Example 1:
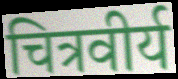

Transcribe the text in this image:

चित्रवीर्य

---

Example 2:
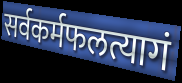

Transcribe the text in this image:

सर्वकर्मफलत्यागं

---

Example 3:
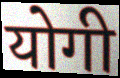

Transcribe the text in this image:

योगी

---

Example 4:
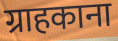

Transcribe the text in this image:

ग्राहकाना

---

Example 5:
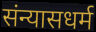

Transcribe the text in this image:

संन्यासधर्म